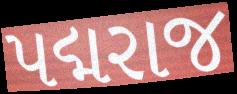
પદ્મરાજ